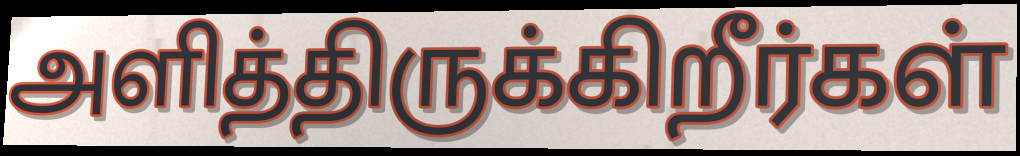
அளித்திருக்கிறீர்கள்